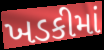
ખડકીમાં